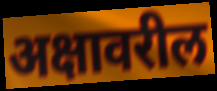
अक्षावरील